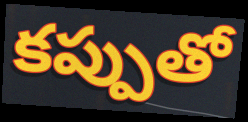
కప్పుతో